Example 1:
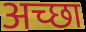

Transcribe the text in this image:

अच्‍छा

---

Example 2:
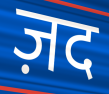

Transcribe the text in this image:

ज़द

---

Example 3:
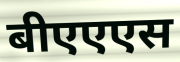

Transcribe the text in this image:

बीएएएस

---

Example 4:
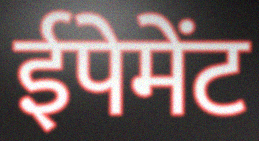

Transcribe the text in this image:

ईपेमेंट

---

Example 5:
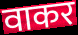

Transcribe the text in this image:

वाकर